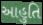
આહુતિ